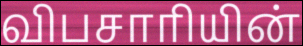
விபசாரியின்